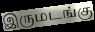
இருமடங்கு